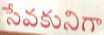
సేవకునిగా